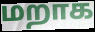
மறாக